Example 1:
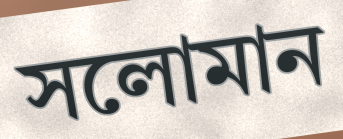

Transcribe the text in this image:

সলোমান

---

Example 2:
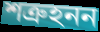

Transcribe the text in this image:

শত্রুহনন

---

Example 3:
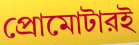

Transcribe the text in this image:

প্রোমোটারই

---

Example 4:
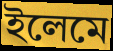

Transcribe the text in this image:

ইলেমে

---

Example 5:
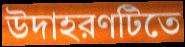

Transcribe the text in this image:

উদাহরণটিতে